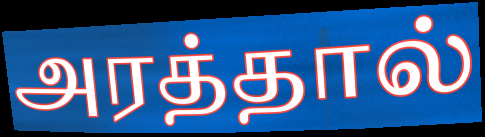
அரத்தால்